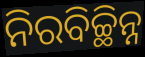
ନିରବିଚ୍ଛିନ୍ନ